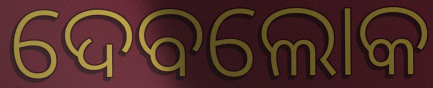
ଦେବଲୋକ